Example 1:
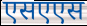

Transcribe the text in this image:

एसएएस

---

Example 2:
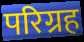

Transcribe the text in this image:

परिग्रह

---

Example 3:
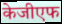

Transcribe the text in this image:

केजीएफ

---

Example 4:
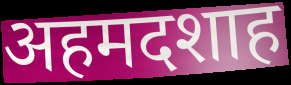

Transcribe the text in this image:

अहमदशाह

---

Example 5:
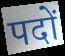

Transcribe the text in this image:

पदों